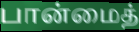
பான்மைத்